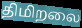
திமிறலை